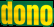
dono